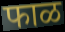
फाळ